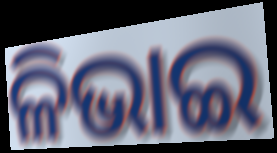
ଳିଭାଇ